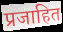
प्रजाहित